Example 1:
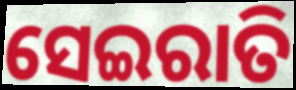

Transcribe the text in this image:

ସେଇରାତି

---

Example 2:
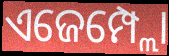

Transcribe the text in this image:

ଏଜେମ୍ପ୍ଲୋ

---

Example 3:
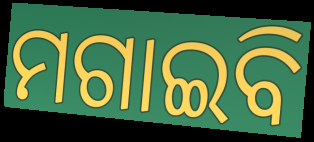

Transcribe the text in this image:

ମଗାଇବି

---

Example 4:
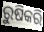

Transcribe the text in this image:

ରୁଷିକରି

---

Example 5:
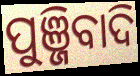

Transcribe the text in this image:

ପୁଞ୍ଜିବାଦି